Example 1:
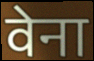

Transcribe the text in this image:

वेना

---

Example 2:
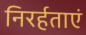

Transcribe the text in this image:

निरर्हताएं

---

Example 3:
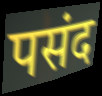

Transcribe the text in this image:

पसंद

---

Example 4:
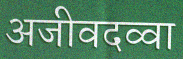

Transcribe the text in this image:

अजीवदव्वा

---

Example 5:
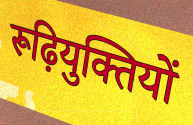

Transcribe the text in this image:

रूढ़ियुक्तियों